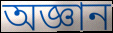
অজ্ঞান